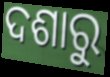
ଦଶାରୁ